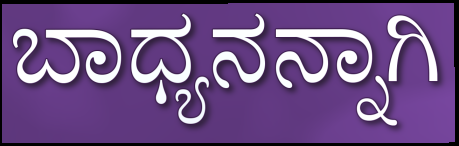
ಬಾಧ್ಯನನ್ನಾಗಿ